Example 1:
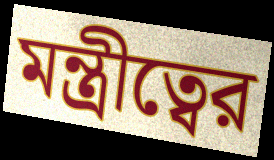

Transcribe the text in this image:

মন্ত্রীত্বের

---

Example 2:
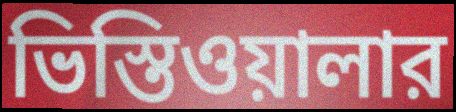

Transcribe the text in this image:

ভিস্তিওয়ালার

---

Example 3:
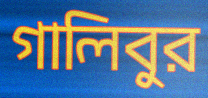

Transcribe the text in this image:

গালিবুর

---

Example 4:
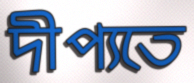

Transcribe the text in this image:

দীপ্যতে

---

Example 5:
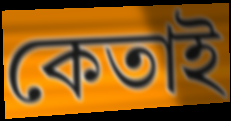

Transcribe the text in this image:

কেতাই